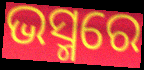
ଭସ୍ମରେ